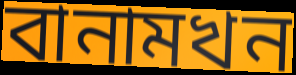
বানামখন